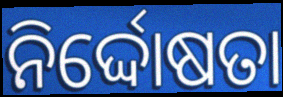
ନିର୍ଦ୍ଦୋଷତା